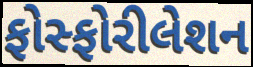
ફોસ્ફોરીલેશન